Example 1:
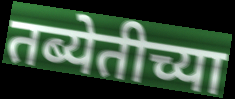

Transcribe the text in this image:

तब्येतीच्या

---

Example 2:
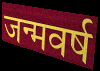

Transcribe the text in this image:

जन्मवर्ष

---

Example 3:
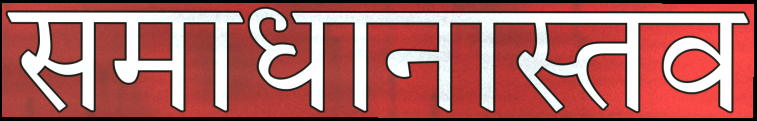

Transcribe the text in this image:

समाधानास्तव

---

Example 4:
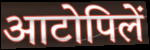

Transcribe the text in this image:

आटोपिलें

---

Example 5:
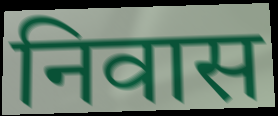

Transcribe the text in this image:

निवास